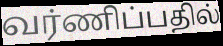
வர்ணிப்பதில்